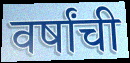
वर्षांची